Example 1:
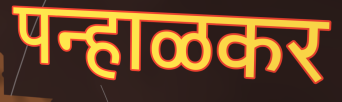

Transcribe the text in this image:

पन्हाळकर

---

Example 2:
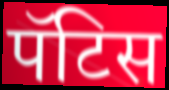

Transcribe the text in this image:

पॅटिस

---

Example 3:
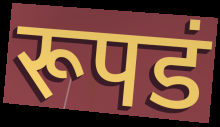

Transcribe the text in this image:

रूपडं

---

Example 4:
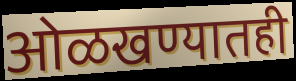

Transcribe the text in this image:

ओळखण्यातही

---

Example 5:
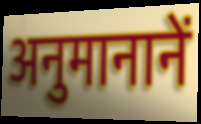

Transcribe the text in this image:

अनुमानानें